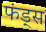
फंड्‌स